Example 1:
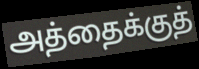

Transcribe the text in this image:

அத்தைக்குத்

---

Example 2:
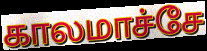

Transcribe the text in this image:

காலமாச்சே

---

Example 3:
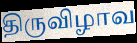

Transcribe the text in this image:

திருவிழாவ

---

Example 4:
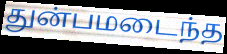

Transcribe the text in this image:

துன்பமடைந்த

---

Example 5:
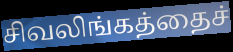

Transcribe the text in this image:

சிவலிங்கத்தைச்